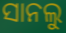
ସାନଲୁ